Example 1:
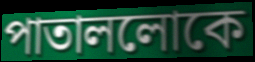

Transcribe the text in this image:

পাতাললোকে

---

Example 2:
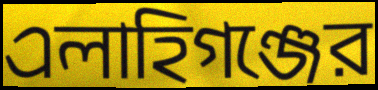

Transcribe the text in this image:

এলাহিগঞ্জের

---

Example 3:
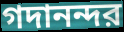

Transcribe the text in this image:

গদানন্দর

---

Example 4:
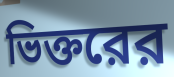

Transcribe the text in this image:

ভিক্তরের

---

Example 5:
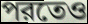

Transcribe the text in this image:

পরতেও